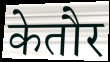
केतौर